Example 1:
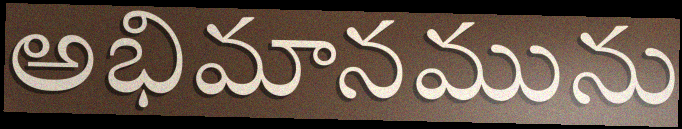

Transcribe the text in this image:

అభిమానమును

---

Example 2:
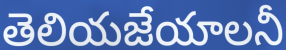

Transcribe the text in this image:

తెలియజేయాలనీ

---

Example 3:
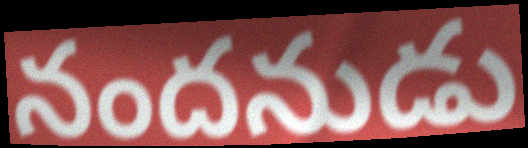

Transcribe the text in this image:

నందనుడు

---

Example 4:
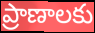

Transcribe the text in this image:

ప్రాణాలకు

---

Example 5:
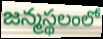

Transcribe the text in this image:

జన్మస్థలంలో